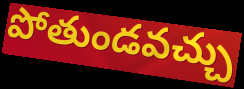
పోతుండవచ్చు